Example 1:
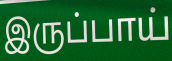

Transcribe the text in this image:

இருப்பாய்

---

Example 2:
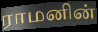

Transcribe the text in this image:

ராமனின்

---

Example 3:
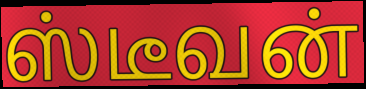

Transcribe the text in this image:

ஸ்டீவன்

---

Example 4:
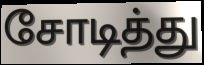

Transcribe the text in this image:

சோடித்து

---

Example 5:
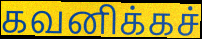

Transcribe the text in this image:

கவனிக்கச்